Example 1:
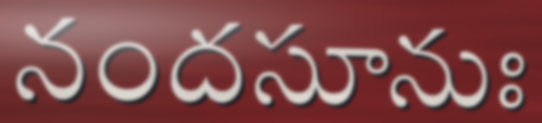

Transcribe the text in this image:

నందసూనుః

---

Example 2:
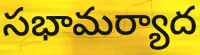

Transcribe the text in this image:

సభామర్యాద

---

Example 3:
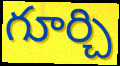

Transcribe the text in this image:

గూర్చి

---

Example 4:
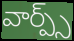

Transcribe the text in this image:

వార్ప్స్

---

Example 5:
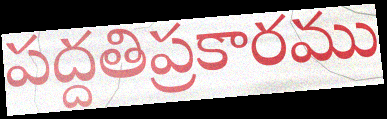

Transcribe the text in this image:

పద్దతిప్రకారము